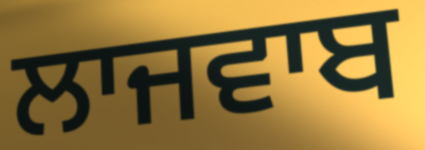
ਲਾਜਵਾਬ